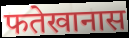
फतेखानास